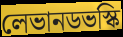
লেভানডভস্কি